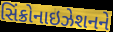
સિંક્રોનાઇઝેશનને